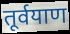
तूर्वयाण